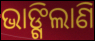
ଭାଙ୍ଗିଲାଣି